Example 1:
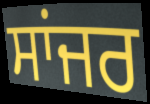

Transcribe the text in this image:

ਸਾਂਜਰ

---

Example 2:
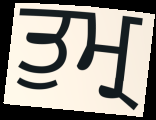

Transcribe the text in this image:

ਤੁਮ੍ਰ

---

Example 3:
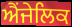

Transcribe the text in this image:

ਐਂਜੇਲਿਕ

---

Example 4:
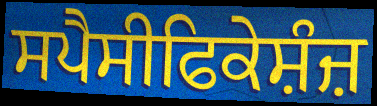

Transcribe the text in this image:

ਸਪੈਸੀਫਿਕੇਸ਼ੰਜ਼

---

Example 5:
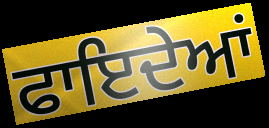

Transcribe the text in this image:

ਫਾਇਦੇਆਂ